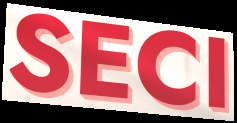
SECI